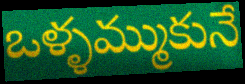
ఒళ్ళమ్ముకునే